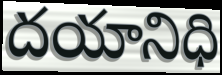
దయానిధి